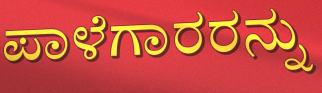
ಪಾಳೆಗಾರರನ್ನು